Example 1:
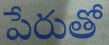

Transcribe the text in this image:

పేరుతో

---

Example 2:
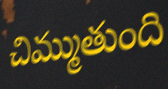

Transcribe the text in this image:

చిమ్ముతుంది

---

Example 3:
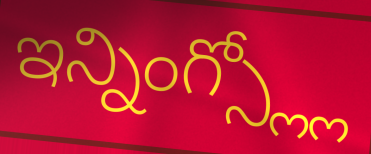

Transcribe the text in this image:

ఇన్నింగ్స్ల్లో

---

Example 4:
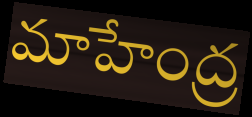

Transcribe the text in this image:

మాహేంద్ర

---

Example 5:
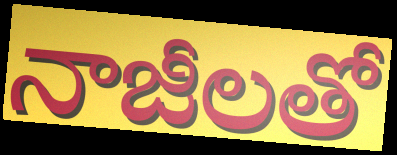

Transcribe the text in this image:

నాజీలతో